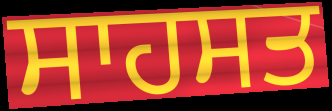
ਸਾਹਸਤ